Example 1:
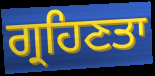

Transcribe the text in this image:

ਗ੍ਰਹਿਣਤਾ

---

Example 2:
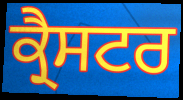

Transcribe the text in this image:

ਕ੍ਰੈਸਟਰ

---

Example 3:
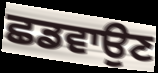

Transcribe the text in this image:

ਛਡਵਾਉਣ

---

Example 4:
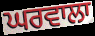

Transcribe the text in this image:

ਘਰਵਾਲਾ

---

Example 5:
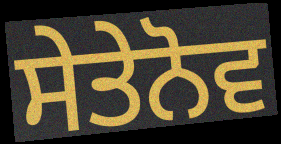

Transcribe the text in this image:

ਸੇਤੇਨੋਵ